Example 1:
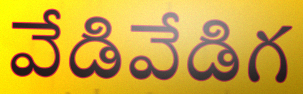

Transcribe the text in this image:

వేడివేడిగ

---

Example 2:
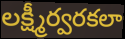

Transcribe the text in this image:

లక్ష్మీర్వరకలా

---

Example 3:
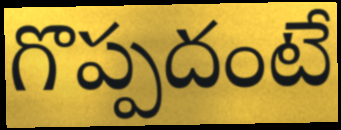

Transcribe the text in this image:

గొప్పదంటే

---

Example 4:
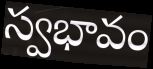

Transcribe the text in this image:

స్వభావం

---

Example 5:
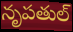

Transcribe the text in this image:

నృపతుల్